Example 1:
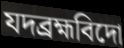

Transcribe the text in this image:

যদব্রহ্মবিদো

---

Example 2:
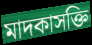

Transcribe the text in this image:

মাদকাসক্তি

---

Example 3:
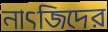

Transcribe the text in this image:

নাৎজিদের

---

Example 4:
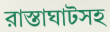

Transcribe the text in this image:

রাস্তাঘাটসহ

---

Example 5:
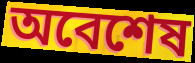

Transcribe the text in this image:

অবেশেষ